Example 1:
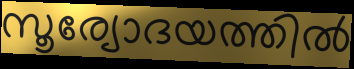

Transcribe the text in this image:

സൂര്യോദയത്തിൽ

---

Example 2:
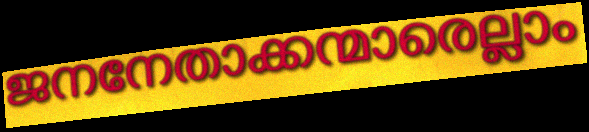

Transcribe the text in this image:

ജനനേതാക്കന്മാരെല്ലാം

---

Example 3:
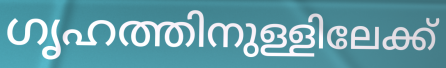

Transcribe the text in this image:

ഗൃഹത്തിനുള്ളിലേക്ക്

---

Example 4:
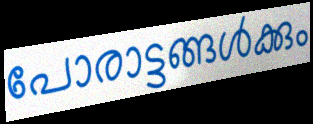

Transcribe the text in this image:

പോരാട്ടങ്ങൾക്കും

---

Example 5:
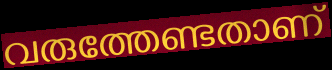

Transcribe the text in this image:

വരുത്തേണ്ടതാണ്